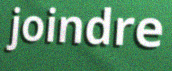
joindre